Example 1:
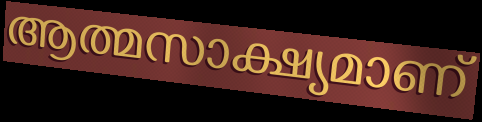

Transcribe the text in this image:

ആത്മസാക്ഷ്യമാണ്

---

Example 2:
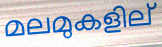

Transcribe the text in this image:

മലമുകളില്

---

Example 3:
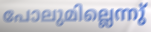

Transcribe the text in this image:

പോലുമില്ലെന്നു്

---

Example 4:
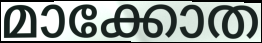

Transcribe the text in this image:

മാക്കോത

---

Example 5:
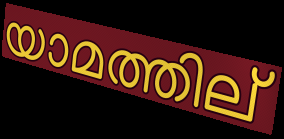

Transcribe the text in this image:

യാമത്തില്